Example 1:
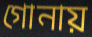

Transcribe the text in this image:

গোনায়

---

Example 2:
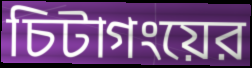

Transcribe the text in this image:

চিটাগংয়ের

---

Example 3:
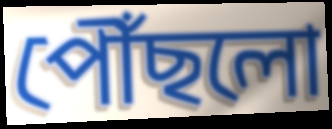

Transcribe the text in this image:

পৌঁছলো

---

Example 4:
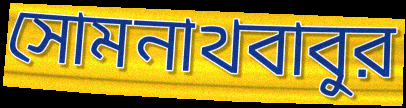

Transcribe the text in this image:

সোমনাথবাবুর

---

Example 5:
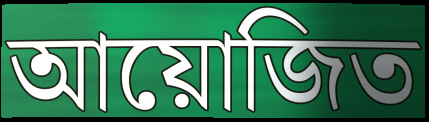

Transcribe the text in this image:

আয়োজিত